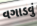
વગાડવું